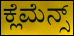
ಕ್ಲೆಮೆನ್ಸ್